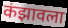
कंझावला